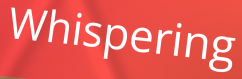
Whispering